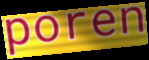
poren